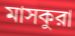
মাসকুরা